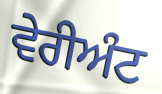
ਵੇਰੀਅੰਟ